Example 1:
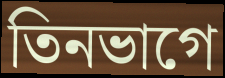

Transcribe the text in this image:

তিনভাগে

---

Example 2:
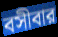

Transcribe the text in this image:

বসীবার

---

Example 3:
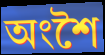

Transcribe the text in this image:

অংশৈ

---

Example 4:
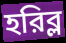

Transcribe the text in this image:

হরিব্ল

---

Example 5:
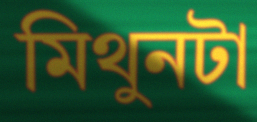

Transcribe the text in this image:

মিথুনটা